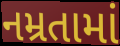
નમ્રતામાં